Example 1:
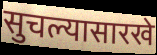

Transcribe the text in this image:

सुचल्यासारखे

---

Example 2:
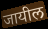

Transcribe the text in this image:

जायील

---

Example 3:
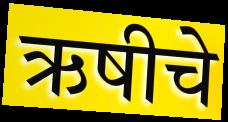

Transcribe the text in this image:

ऋषीचे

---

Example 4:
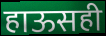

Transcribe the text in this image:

हाऊसही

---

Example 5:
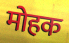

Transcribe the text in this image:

मोहक